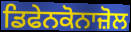
ਡਿਫੇਨਕੋਨਾਜ਼ੋਲ